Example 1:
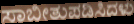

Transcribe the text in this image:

ಸಾಬೀತುಪಡಿಸಿದಳು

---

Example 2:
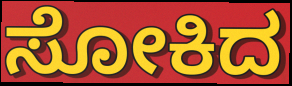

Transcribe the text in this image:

ಸೋಕಿದ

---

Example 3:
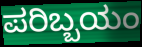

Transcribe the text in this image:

ಪರಿಬ್ಬಯಂ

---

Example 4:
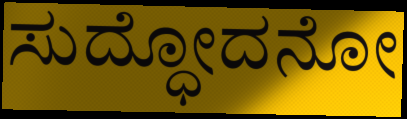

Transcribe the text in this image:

ಸುದ್ಧೋದನೋ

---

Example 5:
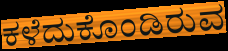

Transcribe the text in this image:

ಕಳೆದುಕೊಂಡಿರುವ